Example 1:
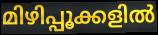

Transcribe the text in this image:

മിഴിപ്പൂക്കളിൽ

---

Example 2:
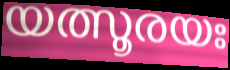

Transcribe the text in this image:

യത്സൂരയഃ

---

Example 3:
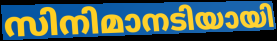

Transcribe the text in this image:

സിനിമാനടിയായി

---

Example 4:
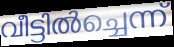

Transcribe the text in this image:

വീട്ടിൽച്ചെന്ന്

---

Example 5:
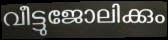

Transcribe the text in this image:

വീട്ടുജോലിക്കും